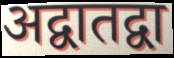
अद्वातद्वा